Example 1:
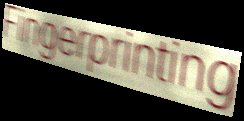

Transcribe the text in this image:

Fingerprinting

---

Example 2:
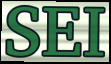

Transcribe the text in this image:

SEI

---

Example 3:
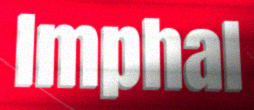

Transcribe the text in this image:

Imphal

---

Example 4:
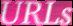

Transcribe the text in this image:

URLs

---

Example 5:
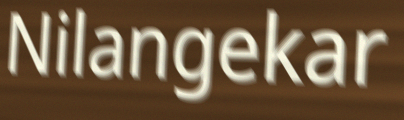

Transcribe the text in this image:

Nilangekar